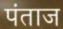
पंताज